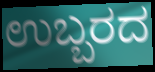
ಉಬ್ಬರದ